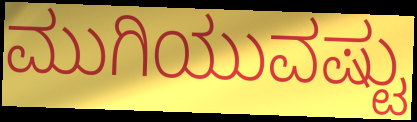
ಮುಗಿಯುವಷ್ಟು